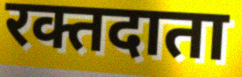
रक्तदाता